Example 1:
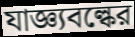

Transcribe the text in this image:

যাজ্ঞ্যবল্কের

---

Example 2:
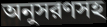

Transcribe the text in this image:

অনুসরণসহ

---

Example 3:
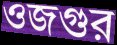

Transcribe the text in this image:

ওজগুর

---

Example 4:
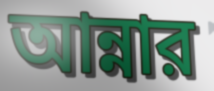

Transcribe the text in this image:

আন্নার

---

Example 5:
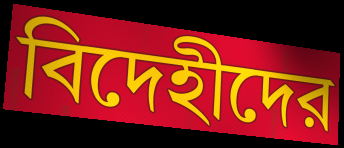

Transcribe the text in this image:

বিদেহীদের